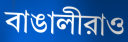
বাঙালীরাও